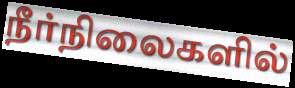
நீர்நிலைகளில்